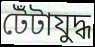
টেঁটাযুদ্ধ